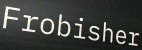
Frobisher